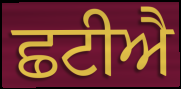
ਛਟੀਐ